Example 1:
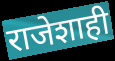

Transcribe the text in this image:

राजेशाही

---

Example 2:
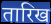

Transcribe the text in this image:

तारिख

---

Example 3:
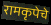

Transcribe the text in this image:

रामकृपेचे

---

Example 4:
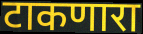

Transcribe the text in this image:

टाकणारा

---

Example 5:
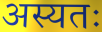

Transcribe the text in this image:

अस्यतः